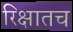
रिक्षातच